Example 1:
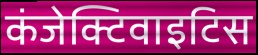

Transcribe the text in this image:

कंजेक्टिवाइटिस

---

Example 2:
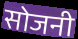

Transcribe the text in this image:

सोजनी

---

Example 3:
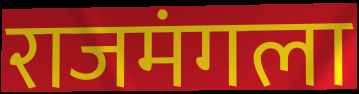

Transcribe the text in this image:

राजमंगला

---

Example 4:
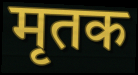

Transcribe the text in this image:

मृतक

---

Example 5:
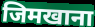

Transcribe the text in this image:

जिमखाना